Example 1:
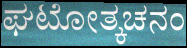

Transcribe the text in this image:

ಘಟೋತ್ಕಚನಂ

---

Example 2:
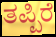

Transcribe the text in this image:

ತಪ್ಪಿರೆ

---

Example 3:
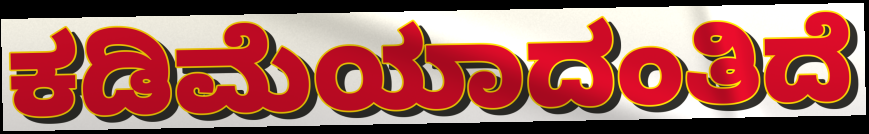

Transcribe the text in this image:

ಕಡಿಮೆಯಾದಂತಿದೆ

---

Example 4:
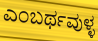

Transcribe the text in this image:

ಎಂಬರ್ಥವುಳ್ಳ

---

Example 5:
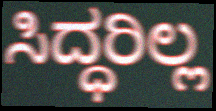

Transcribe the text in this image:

ಸಿದ್ಧರಿಲ್ಲ